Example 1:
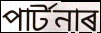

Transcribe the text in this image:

পাৰ্টনাৰ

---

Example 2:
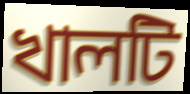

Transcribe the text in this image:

খালটি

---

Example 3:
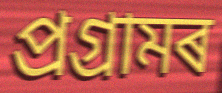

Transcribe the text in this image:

প্ৰগ্ৰামৰ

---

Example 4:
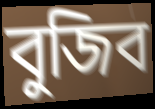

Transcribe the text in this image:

বুজিব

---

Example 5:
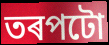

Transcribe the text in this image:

তৰপটো